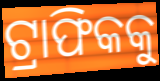
ଟ୍ରାଫିକକୁ